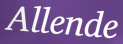
Allende